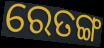
ରେତଙ୍ଗ